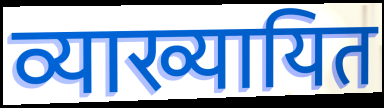
व्याख्यायित